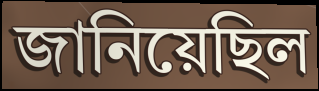
জানিয়েছিল